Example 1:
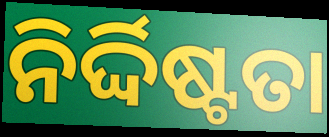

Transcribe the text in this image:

ନିର୍ଦ୍ଦିଷ୍ଟତା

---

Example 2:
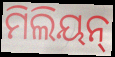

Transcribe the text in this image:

ମିଲିୟନ୍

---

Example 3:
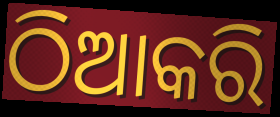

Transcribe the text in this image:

ଠିଆକରି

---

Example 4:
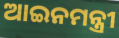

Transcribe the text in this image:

ଆଇନମନ୍ତ୍ରୀ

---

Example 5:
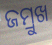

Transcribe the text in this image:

ଜମ୍ରୁଖ